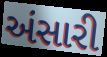
અંસારી